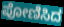
ಪೋಣಿಸಿದ